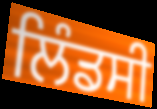
ਲਿੰਡਸੀ